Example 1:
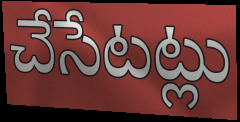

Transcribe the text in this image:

చేసేటట్లు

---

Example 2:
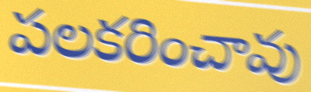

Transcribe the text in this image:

పలకరించావు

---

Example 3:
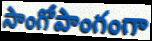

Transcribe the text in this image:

సాంగోపాంగంగా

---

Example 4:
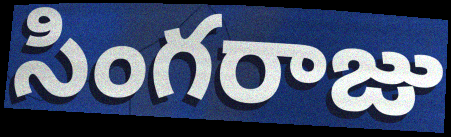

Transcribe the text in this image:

సింగరాజు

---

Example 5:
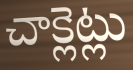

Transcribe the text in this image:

చాక్లెట్లు